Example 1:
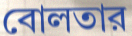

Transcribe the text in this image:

বোলতার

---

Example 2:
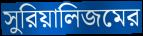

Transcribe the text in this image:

সুরিয়ালিজমের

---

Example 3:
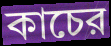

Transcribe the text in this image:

কাচের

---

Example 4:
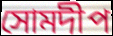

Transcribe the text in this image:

সোমদীপ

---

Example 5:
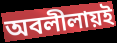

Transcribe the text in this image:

অবলীলায়ই